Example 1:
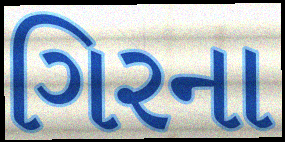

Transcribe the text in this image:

ગિરના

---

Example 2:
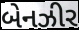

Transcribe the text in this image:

બેનઝીર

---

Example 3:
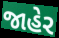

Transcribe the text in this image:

જાહેર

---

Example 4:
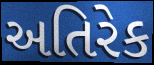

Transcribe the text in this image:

અતિરેક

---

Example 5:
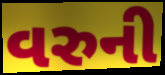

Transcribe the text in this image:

વરુની